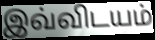
இவ்விடயம்